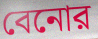
বেনোর